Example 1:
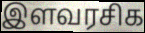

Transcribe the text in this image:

இளவரசிக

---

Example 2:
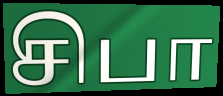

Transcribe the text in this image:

சிபா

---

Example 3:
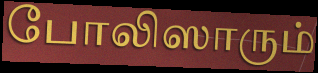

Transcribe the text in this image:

போலிஸாரும்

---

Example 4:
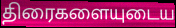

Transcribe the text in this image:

திரைகளையுடைய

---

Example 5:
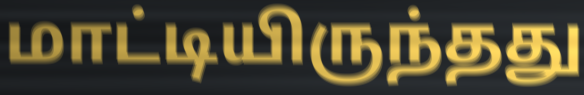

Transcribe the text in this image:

மாட்டியிருந்தது